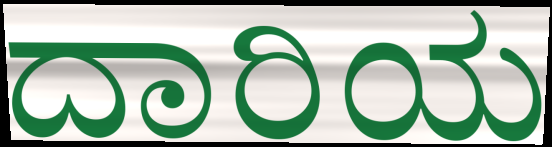
ದಾರಿಯ